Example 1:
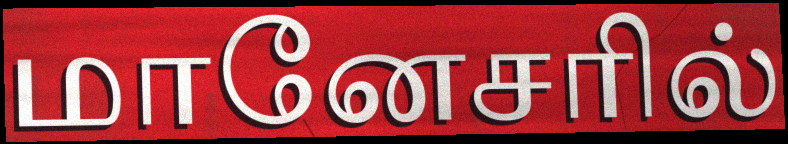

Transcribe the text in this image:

மானேசரில்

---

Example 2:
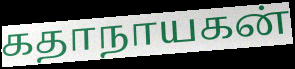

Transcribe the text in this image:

கதாநாயகன்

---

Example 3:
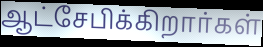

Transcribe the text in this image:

ஆட்சேபிக்கிறார்கள்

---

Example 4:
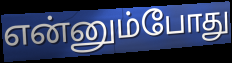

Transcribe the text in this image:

என்னும்போது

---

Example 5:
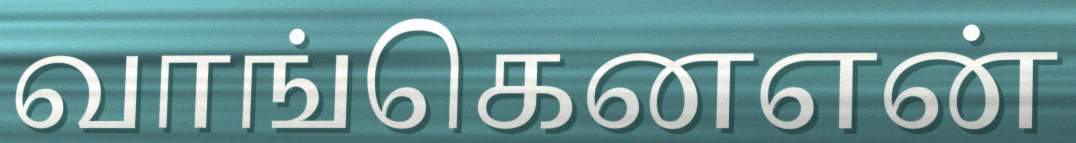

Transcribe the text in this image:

வாங்கெனஎன்